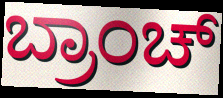
ಬ್ರಾಂಚ್